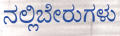
ನಲ್ಲಿಬೇರುಗಳು